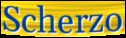
Scherzo